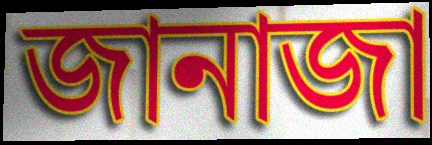
জানাজা